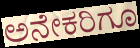
ಅನೇಕರಿಗೂ